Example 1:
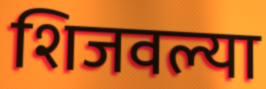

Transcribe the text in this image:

शिजवल्या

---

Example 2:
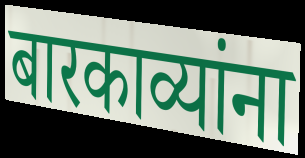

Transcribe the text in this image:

बारकाव्यांना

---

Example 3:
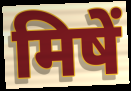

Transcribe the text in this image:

मिषें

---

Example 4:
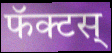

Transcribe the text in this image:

फॅक्टस्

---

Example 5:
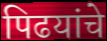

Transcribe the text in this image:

पिढयांचे